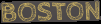
BOSTON